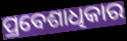
ପ୍ରବେଶାଧିକାର